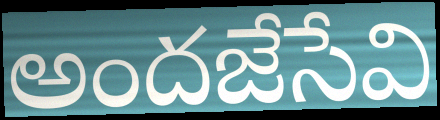
అందజేసేవి